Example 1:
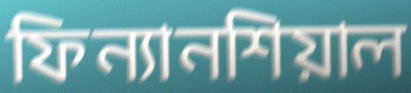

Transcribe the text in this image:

ফিন্যানশিয়াল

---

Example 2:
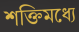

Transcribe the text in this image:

শক্তিমধ্যে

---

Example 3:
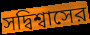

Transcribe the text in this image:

সদ্বিশ্বাসের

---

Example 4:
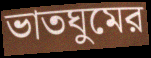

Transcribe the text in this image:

ভাতঘুমের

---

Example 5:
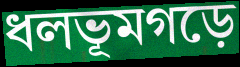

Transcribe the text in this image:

ধলভূমগড়ে